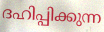
ദഹിപ്പിക്കുന്ന